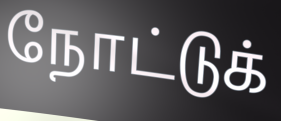
நோட்டுக்